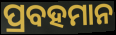
ପ୍ରବହମାନ